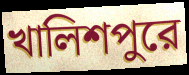
খালিশপুরে